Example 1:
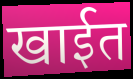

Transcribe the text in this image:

खाईत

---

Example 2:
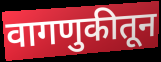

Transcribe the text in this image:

वागणुकीतून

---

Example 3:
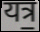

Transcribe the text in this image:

यत्र॒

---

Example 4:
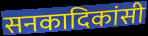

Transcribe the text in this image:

सनकादिकांसी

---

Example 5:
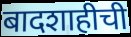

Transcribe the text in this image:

बादशाहीची